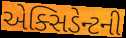
એક્સિડેન્ટની